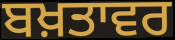
ਬਖ਼ਤਾਵਰ